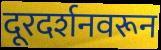
दूरदर्शनवरून